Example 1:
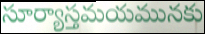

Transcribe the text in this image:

సూర్యాస్తమయమునకు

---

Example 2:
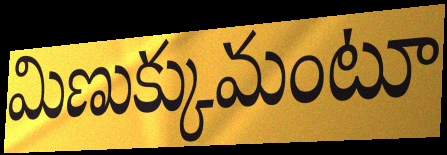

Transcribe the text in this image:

మిణుక్కుమంటూ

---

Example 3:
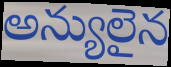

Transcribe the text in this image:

అన్యులైన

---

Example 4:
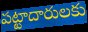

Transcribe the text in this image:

పట్టాదారులకు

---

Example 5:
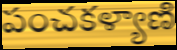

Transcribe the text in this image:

పంచకళ్యాణి